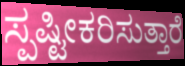
ಸ್ಪಷ್ಟೀಕರಿಸುತ್ತಾರೆ